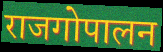
राजगोपालन